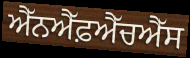
ਐੱਨਐੱਫ਼ਐੱਚਐੱਸ